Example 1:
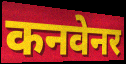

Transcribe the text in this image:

कनवेनर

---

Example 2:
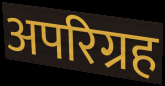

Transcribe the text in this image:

अपरिग्रह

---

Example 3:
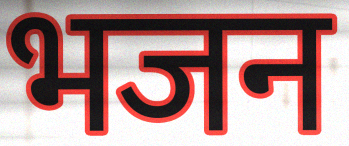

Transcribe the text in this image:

भजन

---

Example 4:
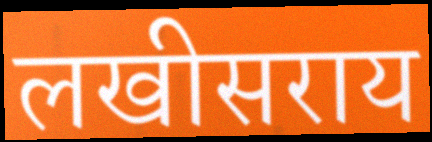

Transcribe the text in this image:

लखीसराय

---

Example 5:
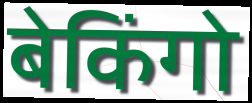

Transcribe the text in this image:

बेकिंगो